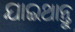
ଯାଇଥାନ୍ତୁ